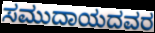
ಸಮುದಾಯದವರ